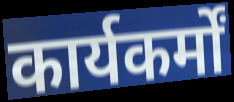
कार्यकर्मों